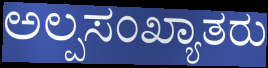
ಅಲ್ಪಸಂಖ್ಯಾತರು